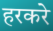
हरकरे